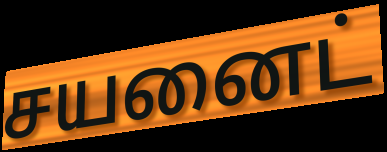
சயனைட்